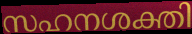
സഹനശക്തി